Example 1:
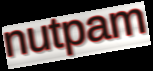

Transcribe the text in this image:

nutpam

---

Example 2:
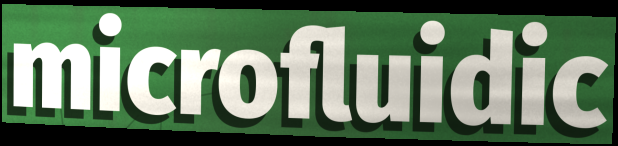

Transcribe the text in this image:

microfluidic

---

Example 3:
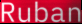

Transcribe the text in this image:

Ruban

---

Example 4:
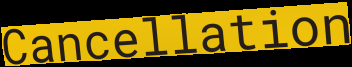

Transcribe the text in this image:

Cancellation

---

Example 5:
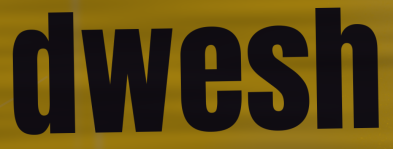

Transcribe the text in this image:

dwesh